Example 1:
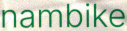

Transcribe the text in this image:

nambike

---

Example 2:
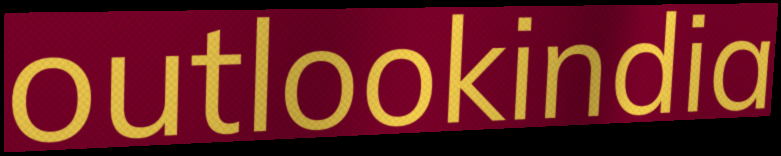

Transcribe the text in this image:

outlookindia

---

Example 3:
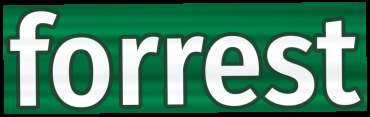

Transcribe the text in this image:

forrest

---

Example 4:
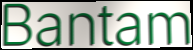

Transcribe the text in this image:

Bantam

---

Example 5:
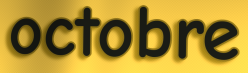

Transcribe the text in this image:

octobre